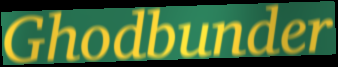
Ghodbunder